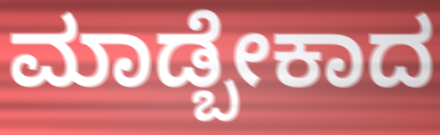
ಮಾಡ್ಬೇಕಾದ